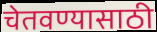
चेतवण्यासाठी